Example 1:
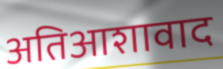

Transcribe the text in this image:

अतिआशावाद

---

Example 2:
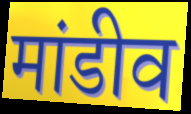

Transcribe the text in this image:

मांडीव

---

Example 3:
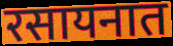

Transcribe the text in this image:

रसायनात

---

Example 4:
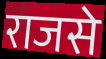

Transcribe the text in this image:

राजसे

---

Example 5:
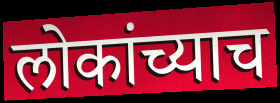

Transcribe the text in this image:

लोकांच्याच